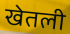
खेतली